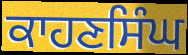
ਕਾਹਣਸਿੰਘ